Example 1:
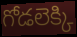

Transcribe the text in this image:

గోడలెక్కి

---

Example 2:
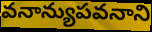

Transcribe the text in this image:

వనాన్యుపవనాని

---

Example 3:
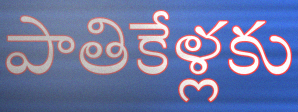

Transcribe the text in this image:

పాతికేళ్లకు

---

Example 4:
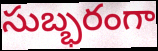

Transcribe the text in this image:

సుబ్భరంగా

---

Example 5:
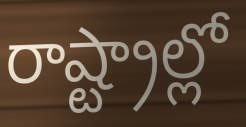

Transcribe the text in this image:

రాష్ట్రాల్లో